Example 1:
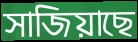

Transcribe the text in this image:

সাজিয়াছে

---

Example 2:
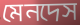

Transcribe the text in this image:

মেনদেস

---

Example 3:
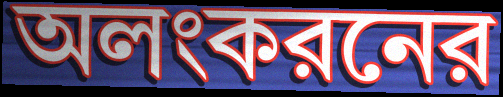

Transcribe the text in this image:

অলংকরনের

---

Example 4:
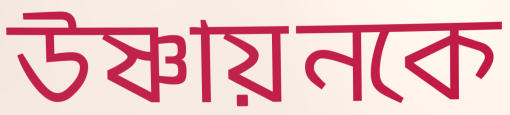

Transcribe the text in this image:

উষ্ণায়নকে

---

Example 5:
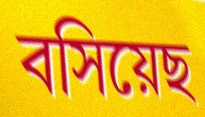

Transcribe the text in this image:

বসিয়েছ